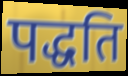
पद्धति